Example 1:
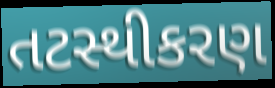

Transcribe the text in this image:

તટસ્થીકરણ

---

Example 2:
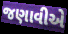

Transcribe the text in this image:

જણાવીએ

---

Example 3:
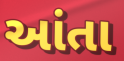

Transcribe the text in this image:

આંતા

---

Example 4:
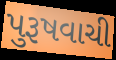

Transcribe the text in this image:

પુરૂષવાચી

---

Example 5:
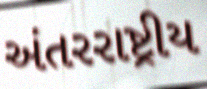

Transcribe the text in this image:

અંતરરાષ્ટ્રીય